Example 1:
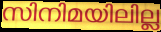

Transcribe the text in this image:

സിനിമയിലില്ല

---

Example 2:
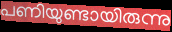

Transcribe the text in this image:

പണിയുണ്ടായിരുന്നു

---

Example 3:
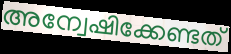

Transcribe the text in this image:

അന്വേഷിക്കേണ്ടത്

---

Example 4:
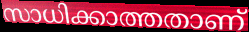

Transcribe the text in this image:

സാധിക്കാത്തതാണ്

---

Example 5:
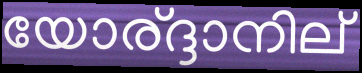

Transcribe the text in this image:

യോര്ദ്ദാനില്